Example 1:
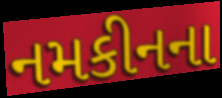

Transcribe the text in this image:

નમકીનના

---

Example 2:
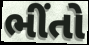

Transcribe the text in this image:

ભીંતો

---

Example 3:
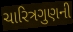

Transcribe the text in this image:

ચારિત્રગુણની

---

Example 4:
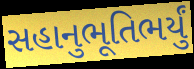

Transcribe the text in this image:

સહાનુભૂતિભર્યું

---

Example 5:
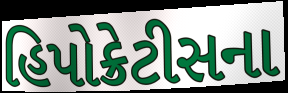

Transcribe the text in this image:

હિપોક્રેટીસના